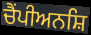
ਚੈਂਪੀਅਨਸ਼ਿ